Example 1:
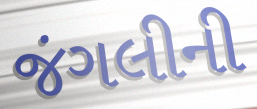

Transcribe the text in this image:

જંગલીની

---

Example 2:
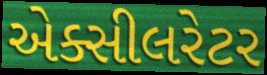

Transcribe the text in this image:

એક્સીલરેટર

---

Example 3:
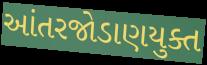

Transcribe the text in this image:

આંતરજોડાણયુક્ત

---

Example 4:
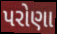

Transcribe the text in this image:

પરોણા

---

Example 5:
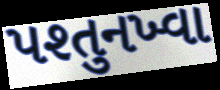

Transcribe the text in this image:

પશ્તુનખ્વા